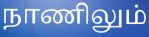
நாணிலும்